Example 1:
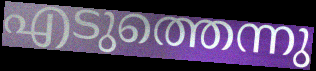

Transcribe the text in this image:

എടുത്തെന്നു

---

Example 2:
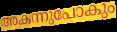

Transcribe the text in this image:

അകന്നുപോകും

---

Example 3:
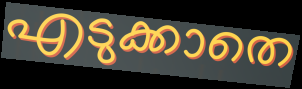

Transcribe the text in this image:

എടുക്കാതെ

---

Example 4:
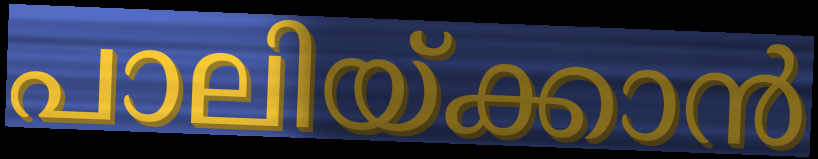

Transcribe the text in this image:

പാലിയ്ക്കാൻ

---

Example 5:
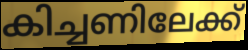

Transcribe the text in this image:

കിച്ചണിലേക്ക്